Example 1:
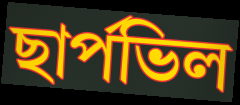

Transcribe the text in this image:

ছাৰ্পভিল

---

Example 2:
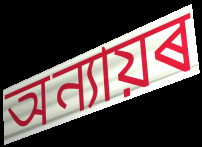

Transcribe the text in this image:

অন্যায়ৰ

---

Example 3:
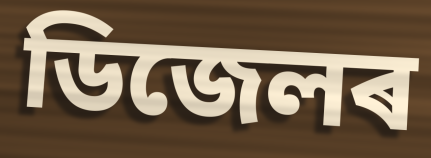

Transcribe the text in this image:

ডিজেলৰ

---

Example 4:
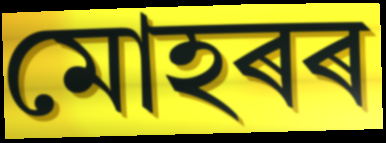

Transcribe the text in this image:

মোহৰৰ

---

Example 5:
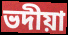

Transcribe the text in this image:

ভদীয়া